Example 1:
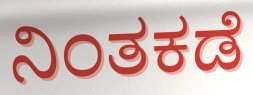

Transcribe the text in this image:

ನಿಂತಕಡೆ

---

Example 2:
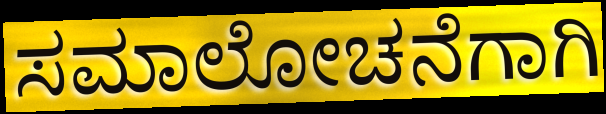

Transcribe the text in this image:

ಸಮಾಲೋಚನೆಗಾಗಿ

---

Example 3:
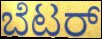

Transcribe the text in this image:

ಬೆಟರ್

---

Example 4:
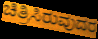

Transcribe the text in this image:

ಚಿತ್ರಿಸಿರುವುದರ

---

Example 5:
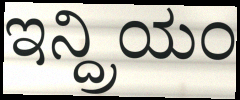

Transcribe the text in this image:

ಇನ್ದ್ರಿಯಂ